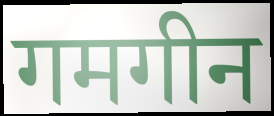
गमगीन